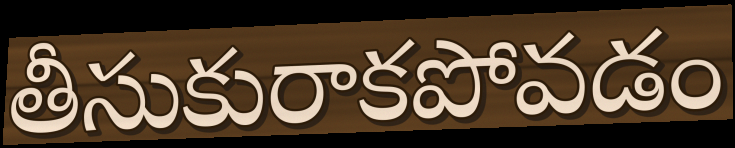
తీసుకురాకపోవడం